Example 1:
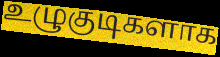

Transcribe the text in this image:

உழுகுடிகளாக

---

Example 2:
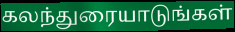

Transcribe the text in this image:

கலந்துரையாடுங்கள்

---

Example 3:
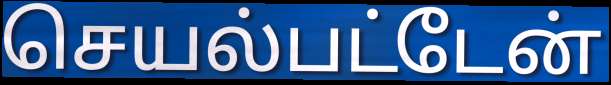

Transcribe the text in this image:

செயல்பட்டேன்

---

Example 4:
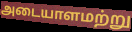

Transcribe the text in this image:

அடையாளமற்று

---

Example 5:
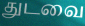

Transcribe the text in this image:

துடவை